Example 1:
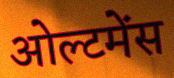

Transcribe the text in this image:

ओल्टमेंस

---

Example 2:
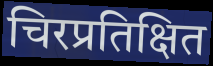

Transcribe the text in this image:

चिरप्रतिक्षित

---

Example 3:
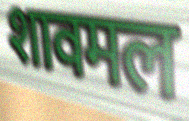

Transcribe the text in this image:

शावमल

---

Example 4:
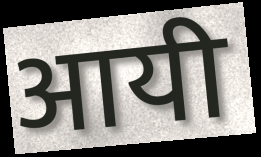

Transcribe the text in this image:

आयी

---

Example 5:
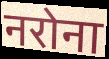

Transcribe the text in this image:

नरोना